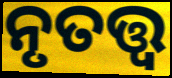
ନୃତତ୍ତ୍ଵ